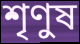
শৃণুষ